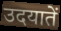
उदयातें